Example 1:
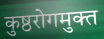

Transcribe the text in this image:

कुष्ठरोगमुक्त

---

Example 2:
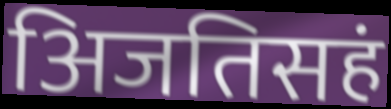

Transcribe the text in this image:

अिजतिसहं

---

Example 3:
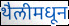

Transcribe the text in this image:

थैलीमधून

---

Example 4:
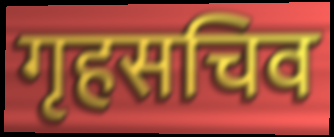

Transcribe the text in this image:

गृहसचिव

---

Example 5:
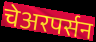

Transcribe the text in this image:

चेअरपर्सन